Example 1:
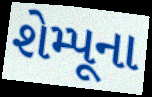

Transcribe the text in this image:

શેમ્પૂના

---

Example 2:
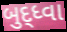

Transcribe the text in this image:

બુદ્ધ્વા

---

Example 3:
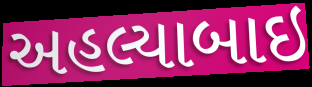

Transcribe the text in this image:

અહલ્યાબાઇ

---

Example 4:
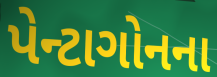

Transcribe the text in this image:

પેન્ટાગોનના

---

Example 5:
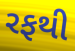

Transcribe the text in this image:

રફથી